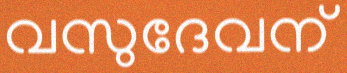
വസുദേവന്